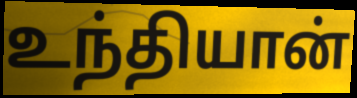
உந்தியான்